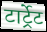
टार्ट्रेट